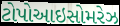
ટોપોઆઇસોમરેઝ